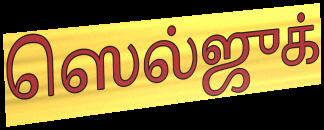
ஸெல்ஜுக்